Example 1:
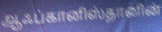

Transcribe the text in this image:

ஆஃப்கானிஸ்தானின்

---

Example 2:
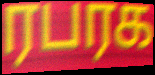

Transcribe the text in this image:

ரபரக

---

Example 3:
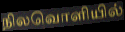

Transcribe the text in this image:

நிலவொளியில்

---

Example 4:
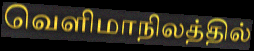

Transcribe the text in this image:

வெளிமாநிலத்தில்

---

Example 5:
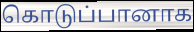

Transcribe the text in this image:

கொடுப்பானாக